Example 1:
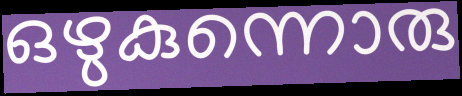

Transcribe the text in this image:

ഒഴുകുന്നൊരു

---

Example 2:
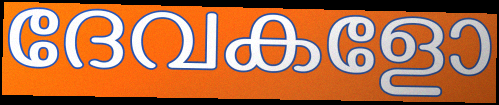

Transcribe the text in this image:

ദേവകളോ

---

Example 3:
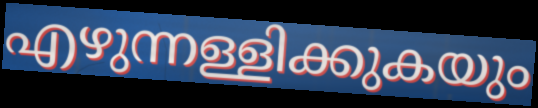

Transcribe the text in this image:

എഴുന്നള്ളിക്കുകയും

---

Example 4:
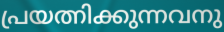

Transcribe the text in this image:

പ്രയത്നിക്കുന്നവനു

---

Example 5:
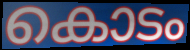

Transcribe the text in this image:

കൊടം